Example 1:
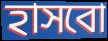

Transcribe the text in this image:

হাসবো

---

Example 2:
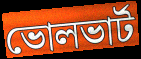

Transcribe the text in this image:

ভোলভার্ট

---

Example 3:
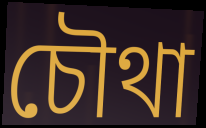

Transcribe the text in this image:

চৌথা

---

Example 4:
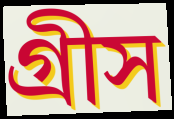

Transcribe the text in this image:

গ্রীস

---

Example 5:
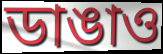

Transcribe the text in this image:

ডাঙাও